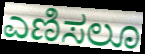
ಎಣಿಸಲೂ